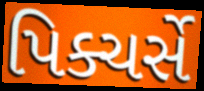
પિક્ચર્સે